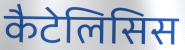
कैटेलिसिस